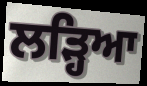
ਲੜ੍ਹਿਆ